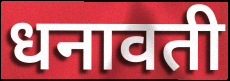
धनावती